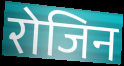
रोजिन